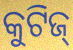
କୁଟିଜ୍